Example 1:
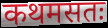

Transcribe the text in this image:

कथमसतः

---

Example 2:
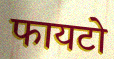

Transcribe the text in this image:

फायटो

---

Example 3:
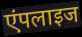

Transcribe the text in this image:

एंपलाइज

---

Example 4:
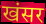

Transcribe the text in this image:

खंसर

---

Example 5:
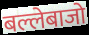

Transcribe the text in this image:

बल्लेबाजो